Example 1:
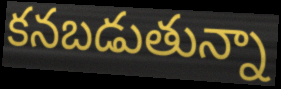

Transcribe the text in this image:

కనబడుతున్నా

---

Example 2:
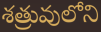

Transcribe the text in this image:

శత్రువులోని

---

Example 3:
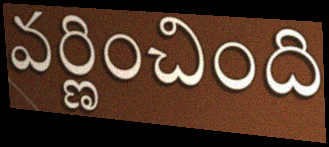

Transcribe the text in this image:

వర్ణించింది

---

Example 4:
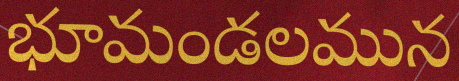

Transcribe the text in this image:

భూమండలమున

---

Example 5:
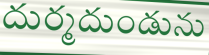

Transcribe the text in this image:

దుర్మదుండును